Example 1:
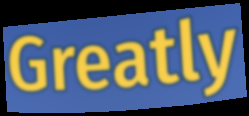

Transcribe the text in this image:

Greatly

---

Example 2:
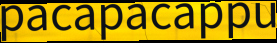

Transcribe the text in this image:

pacapacappu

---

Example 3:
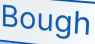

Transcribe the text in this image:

Bough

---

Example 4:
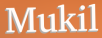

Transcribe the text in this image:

Mukil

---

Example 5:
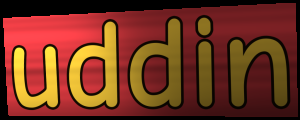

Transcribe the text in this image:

uddin